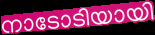
നാടോടിയായി